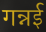
गन्नई